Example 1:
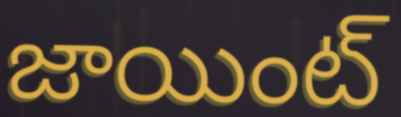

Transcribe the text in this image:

జాయింట్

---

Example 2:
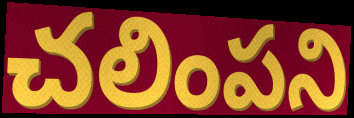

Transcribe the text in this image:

చలింపని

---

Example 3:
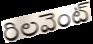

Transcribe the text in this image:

రిలవెంట్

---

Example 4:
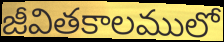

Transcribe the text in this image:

జీవితకాలములో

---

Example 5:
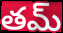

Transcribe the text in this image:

తమ్